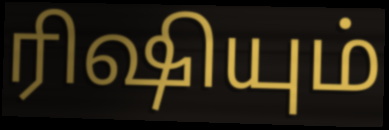
ரிஷியும்